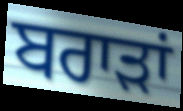
ਬਰਾੜਾਂ